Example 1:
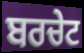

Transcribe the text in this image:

ਬਰਚੇਟ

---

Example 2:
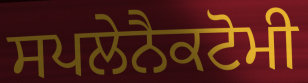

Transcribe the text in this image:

ਸਪਲੇਨੈਕਟੋਮੀ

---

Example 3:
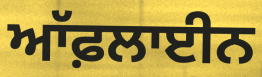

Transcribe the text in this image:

ਆੱਫ਼ਲਾਈਨ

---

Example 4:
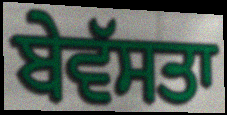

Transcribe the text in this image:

ਬੇਵੱਸਤਾ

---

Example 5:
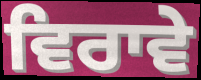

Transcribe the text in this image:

ਵਿਰਾਵੇ